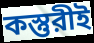
কস্তুরীই